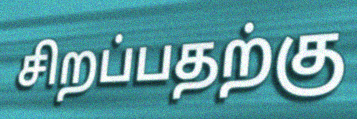
சிறப்பதற்கு